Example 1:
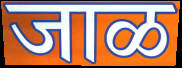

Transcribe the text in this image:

जाळ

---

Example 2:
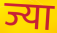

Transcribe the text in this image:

ज्या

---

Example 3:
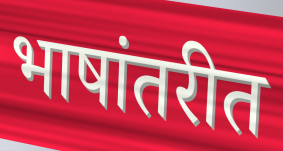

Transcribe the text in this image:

भाषांतरीत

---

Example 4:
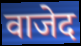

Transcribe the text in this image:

वाजेद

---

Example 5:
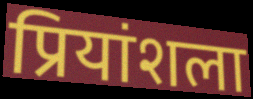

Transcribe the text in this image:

प्रियांशला